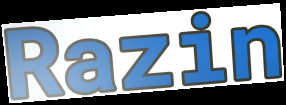
Razin